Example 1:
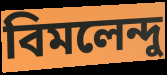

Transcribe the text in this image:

বিমলেন্দু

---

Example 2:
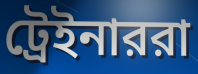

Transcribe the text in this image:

ট্রেইনাররা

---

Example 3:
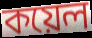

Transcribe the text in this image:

কয়েল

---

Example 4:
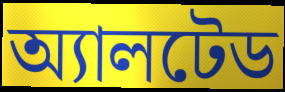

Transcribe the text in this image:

অ্যালটেড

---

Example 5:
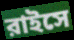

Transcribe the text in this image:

রাইসে